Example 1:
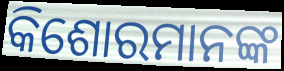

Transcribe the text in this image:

କିଶୋରମାନଙ୍କ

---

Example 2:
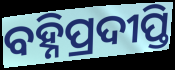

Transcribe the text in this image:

ବହ୍ନିପ୍ରଦୀପ୍ତି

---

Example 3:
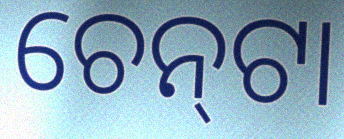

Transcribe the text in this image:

ଚେନ୍‌ଟା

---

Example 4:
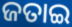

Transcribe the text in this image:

ଜତାଇ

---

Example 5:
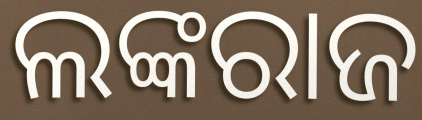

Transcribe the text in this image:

ଲଙ୍କରାଜ